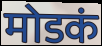
मोडकं